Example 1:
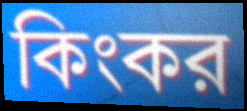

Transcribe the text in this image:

কিংকর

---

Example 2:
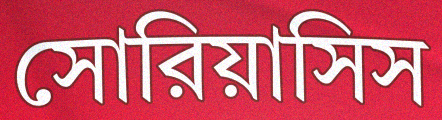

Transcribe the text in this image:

সোরিয়াসিস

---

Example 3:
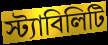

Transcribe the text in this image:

স্ট্যাবিলিটি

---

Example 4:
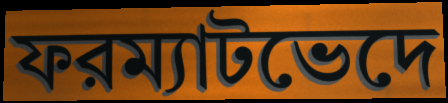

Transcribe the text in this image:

ফরম্যাটভেদে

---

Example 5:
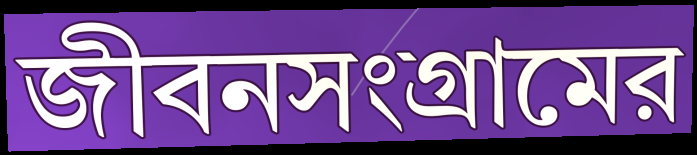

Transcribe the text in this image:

জীবনসংগ্রামের